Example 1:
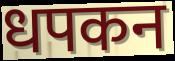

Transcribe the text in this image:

धपकन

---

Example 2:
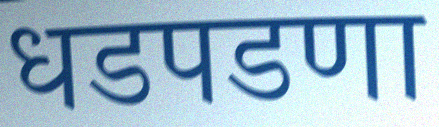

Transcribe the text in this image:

धडपडणा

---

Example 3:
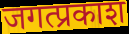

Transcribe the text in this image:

जगत्प्रकाश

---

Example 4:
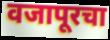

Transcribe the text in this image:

वजापूरचा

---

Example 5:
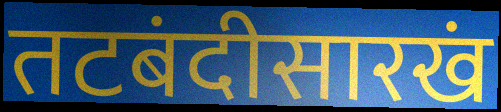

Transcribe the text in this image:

तटबंदीसारखं